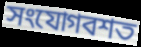
সংযোগবশত